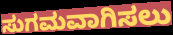
ಸುಗಮವಾಗಿಸಲು